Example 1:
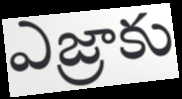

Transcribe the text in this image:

ఎజ్రాకు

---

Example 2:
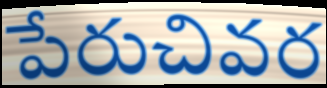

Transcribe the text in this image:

పేరుచివర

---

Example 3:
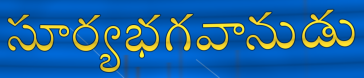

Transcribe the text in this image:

సూర్యభగవానుడు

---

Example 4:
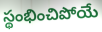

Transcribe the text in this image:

స్థంభించిపోయే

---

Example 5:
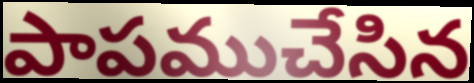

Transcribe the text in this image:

పాపముచేసిన